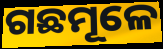
ଗଛମୂଳେ